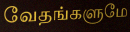
வேதங்களுமே